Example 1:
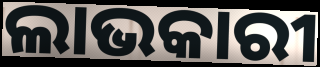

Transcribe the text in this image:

ଲାଭକାରୀ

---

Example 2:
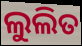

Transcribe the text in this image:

ଲୁଲିତ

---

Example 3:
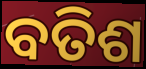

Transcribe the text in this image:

ବତିଶ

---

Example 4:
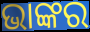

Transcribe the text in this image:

ଭାଙ୍କର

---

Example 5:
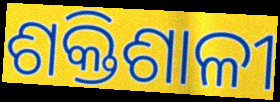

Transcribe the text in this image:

ଶକ୍ତିଶାଳୀ